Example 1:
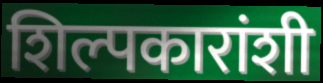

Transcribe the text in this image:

शिल्पकारांशी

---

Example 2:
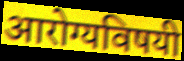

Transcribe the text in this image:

आरोग्यविषयी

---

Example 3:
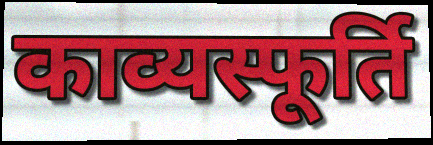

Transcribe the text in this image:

काव्यस्फूर्ति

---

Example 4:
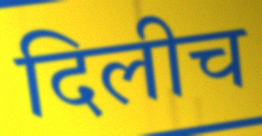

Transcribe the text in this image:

दिलीच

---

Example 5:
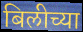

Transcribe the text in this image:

बिलीच्या